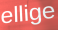
ellige